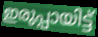
ഇരുപ്പായിട്ട്